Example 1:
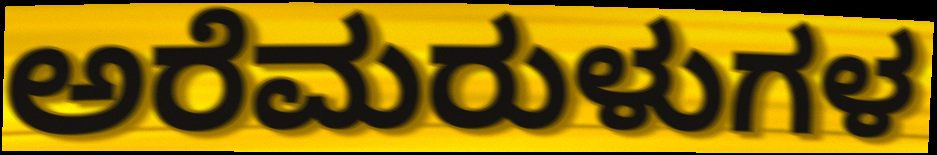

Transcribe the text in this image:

ಅರೆಮರುಳುಗಳ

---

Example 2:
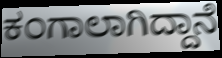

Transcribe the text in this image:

ಕಂಗಾಲಾಗಿದ್ದಾನೆ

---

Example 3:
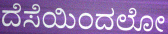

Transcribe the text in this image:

ದೆಸೆಯಿಂದಲೋ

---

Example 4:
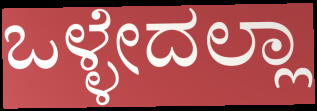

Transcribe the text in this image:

ಒಳ್ಳೇದಲ್ಲಾ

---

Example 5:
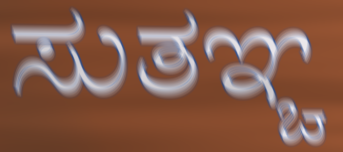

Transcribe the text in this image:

ಸುತಞ್ಚ